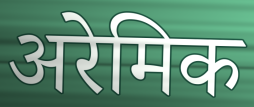
अरेमिक